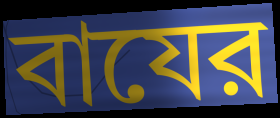
বাযের